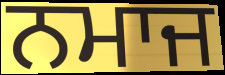
ਨਮਾਜ